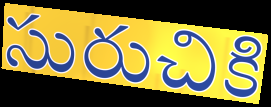
సురుచికి